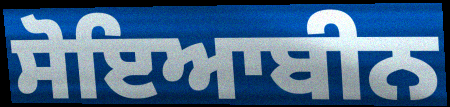
ਸੋਇਆਬੀਨ